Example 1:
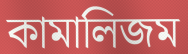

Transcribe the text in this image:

কামালিজম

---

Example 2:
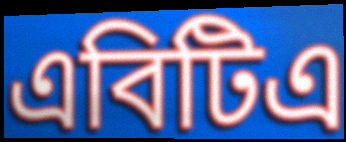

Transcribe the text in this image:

এবিটিএ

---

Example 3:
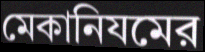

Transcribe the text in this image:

মেকানিযমের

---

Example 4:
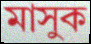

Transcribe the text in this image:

মাসুক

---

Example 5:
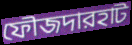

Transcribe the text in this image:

ফৌজদারহাট